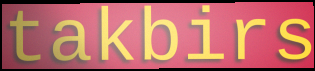
takbirs